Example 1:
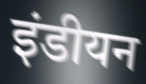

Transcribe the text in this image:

इंडीयन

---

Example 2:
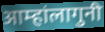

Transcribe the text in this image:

आम्हांलागुनी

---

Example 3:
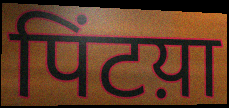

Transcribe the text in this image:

पिंटय़ा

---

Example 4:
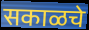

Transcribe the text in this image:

सकाळचे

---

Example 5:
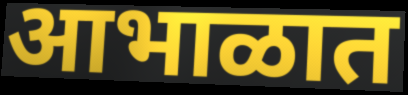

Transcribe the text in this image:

आभाळात